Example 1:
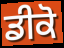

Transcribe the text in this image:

ਡੀਕੋ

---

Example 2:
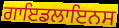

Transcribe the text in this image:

ਗਾਇਡਲਾਇਨਸ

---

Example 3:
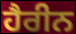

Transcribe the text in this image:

ਹੈਰੀਨ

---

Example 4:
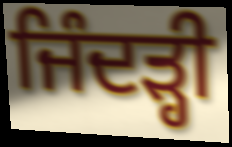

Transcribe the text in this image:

ਜਿੰਦੜ੍ਹੀ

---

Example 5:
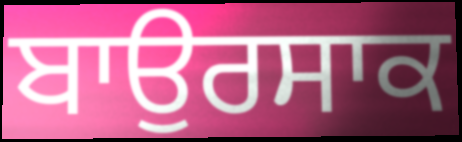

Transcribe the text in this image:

ਬਾਉਰਸਾਕ